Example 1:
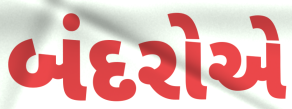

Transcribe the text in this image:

બંદરોએ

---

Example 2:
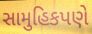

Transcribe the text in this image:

સામુહિકપણે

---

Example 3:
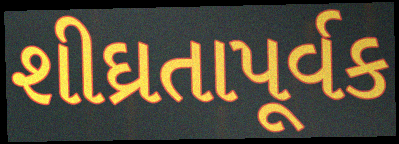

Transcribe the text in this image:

શીઘ્રતાપૂર્વક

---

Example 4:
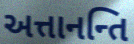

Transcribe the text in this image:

અત્તાનન્તિ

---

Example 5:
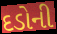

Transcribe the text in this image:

દડોની